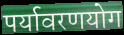
पर्यावरणयोग